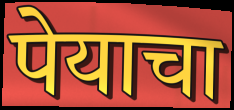
पेयाचा